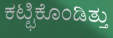
ಕಟ್ಟಿಕೊಂಡಿತ್ತು